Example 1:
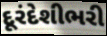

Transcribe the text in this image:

દૂરંદેશીભરી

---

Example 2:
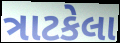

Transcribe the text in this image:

ત્રાટકેલા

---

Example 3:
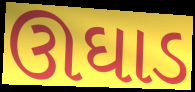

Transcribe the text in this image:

ઊઘાડ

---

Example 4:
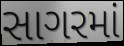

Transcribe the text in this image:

સાગરમાં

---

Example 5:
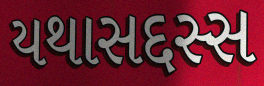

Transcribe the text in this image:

યથાસદ્દસ્સ